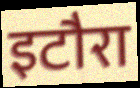
इटौरा